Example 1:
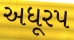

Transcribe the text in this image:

અધૂરપ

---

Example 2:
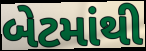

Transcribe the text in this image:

બેટમાંથી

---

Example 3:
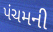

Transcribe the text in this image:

પંચમની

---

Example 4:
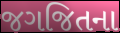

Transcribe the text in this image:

જગજિતના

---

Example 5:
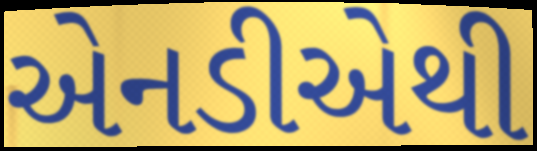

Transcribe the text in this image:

એનડીએથી